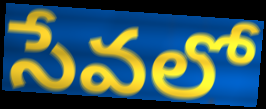
సేవలో